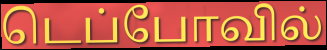
டெப்போவில்